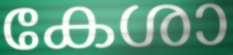
കേശാ